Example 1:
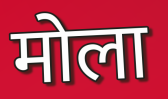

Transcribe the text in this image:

मोला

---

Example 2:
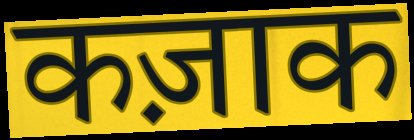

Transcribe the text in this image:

कज़ाक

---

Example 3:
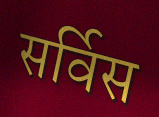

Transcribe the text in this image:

सर्विस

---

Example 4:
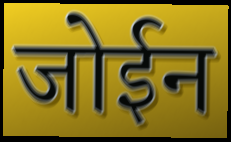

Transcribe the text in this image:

जोईन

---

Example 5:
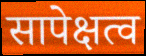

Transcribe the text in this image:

सापेक्षत्व